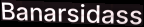
Banarsidass